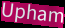
Upham